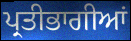
ਪ੍ਰਤੀਭਾਗੀਆਂ